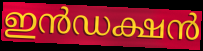
ഇൻഡക്ഷൻ